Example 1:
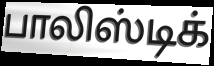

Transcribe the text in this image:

பாலிஸ்டிக்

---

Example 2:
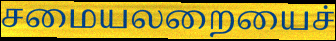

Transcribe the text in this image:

சமையலறையைச்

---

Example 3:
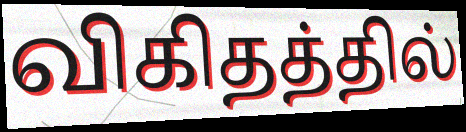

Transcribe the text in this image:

விகிதத்தில்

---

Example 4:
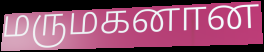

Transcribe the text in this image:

மருமகனான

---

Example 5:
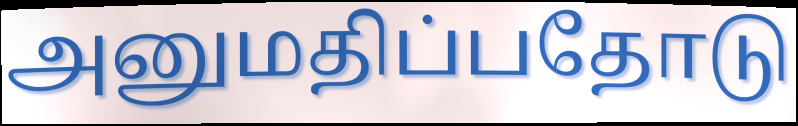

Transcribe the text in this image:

அனுமதிப்பதோடு